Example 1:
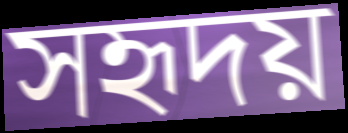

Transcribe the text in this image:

সহৃদয়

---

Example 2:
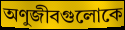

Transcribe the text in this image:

অণুজীবগুলোকে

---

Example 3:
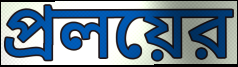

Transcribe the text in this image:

প্রলয়ের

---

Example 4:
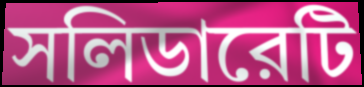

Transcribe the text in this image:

সলিডারেটি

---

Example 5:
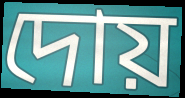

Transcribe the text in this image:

দোয়